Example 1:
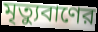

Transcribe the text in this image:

মৃত্যুবাণের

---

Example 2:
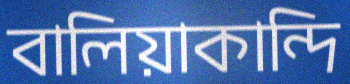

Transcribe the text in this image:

বালিয়াকান্দি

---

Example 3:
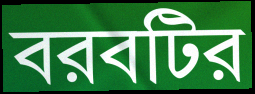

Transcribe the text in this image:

বরবটির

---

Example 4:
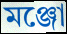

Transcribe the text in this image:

মঞ্জো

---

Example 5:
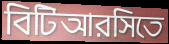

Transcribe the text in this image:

বিটিআরসিতে